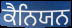
ਕੈਨਿਯਨ